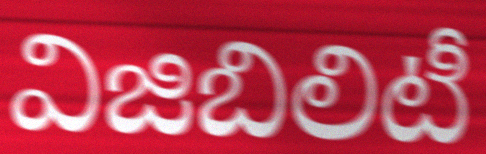
విజిబిలిటీ